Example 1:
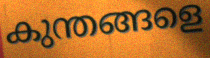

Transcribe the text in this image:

കുന്തങ്ങളെ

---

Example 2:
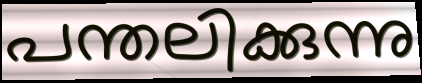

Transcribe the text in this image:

പന്തലിക്കുന്നു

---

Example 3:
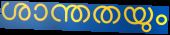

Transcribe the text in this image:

ശാന്തതയും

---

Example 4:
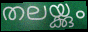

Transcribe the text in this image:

തലയ്ക്കും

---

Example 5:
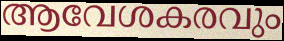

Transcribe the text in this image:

ആവേശകരവും